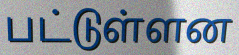
பட்டுள்ளன